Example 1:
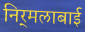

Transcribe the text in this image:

निर्मलाबाई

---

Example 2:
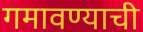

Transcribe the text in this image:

गमावण्याची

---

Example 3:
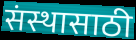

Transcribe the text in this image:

संस्थासाठी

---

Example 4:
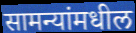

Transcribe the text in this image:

सामन्यांमधील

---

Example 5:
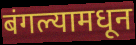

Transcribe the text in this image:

बंगल्यामधून